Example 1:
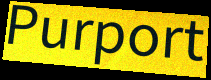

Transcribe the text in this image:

Purport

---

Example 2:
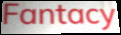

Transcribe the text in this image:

Fantacy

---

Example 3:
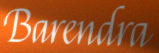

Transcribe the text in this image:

Barendra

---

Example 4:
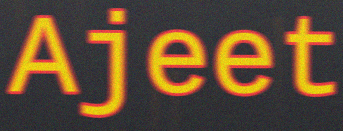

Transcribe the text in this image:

Ajeet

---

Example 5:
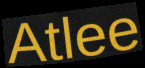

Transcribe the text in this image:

Atlee